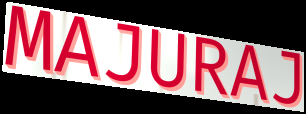
MAJURAJ